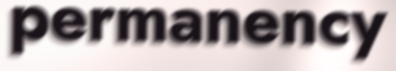
permanency